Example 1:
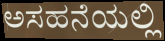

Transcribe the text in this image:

ಅಸಹನೆಯಲ್ಲಿ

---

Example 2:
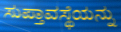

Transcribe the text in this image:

ಸುಪ್ತಾವಸ್ಥೆಯನ್ನು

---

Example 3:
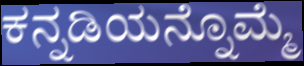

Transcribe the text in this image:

ಕನ್ನಡಿಯನ್ನೊಮ್ಮೆ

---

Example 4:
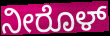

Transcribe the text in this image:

ನೀರೊಳ್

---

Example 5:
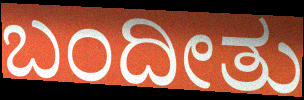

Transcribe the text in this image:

ಬಂದೀತು